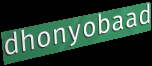
dhonyobaad